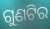
ଗୁଣଟିର